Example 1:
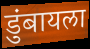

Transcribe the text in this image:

डुंबायला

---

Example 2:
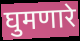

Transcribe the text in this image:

घुमणारे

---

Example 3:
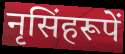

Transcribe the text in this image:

नृसिंहरूपें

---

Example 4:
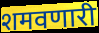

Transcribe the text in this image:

शमवणारी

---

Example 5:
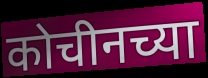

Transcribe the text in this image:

कोचीनच्या